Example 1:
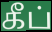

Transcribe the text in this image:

கீப்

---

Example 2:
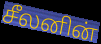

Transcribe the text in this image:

சீலனின்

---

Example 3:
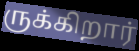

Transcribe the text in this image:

ருக்கிறார்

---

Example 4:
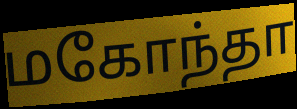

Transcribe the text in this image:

மகோந்தா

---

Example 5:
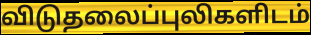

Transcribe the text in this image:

விடுதலைப்புலிகளிடம்